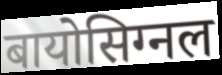
बायोसिग्नल